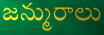
జన్మురాలు